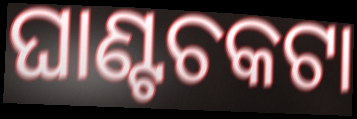
ଘାଣ୍ଟଚକଟା